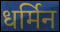
धर्मिन